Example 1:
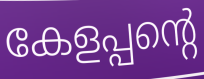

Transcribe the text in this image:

കേളപ്പന്റെ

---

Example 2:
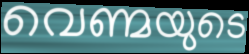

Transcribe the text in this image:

വെണ്മയുടെ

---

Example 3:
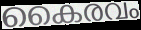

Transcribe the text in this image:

കൈരവം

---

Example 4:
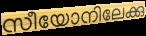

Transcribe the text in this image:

സീയോനിലേക്കു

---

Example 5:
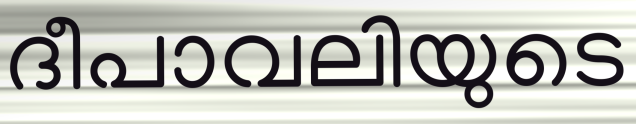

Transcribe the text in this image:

ദീപാവലിയുടെ